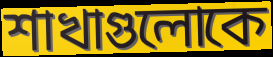
শাখাগুলোকে